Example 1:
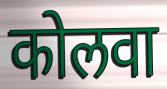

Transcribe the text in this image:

कोलवा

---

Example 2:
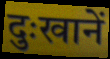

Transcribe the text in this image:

दुःखानें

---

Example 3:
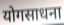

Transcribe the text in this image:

योगसाधना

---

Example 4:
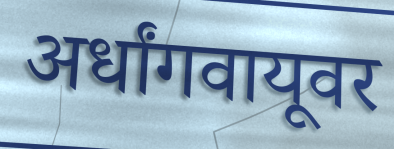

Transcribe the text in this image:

अर्धांगवायूवर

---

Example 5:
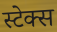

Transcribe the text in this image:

स्टेक्स